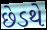
છેડથે